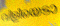
വിളിയെടാ